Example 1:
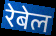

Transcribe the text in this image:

रेबेल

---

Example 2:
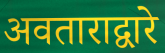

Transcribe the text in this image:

अवताराद्वारे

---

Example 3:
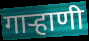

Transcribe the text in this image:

गार्‍हाणी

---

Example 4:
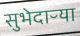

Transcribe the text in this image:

सुभेदाऱ्या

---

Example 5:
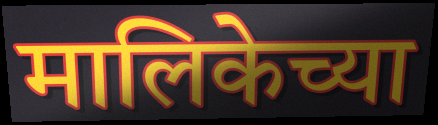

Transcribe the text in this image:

मालिकेच्या